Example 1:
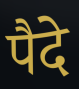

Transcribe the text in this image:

पैदे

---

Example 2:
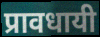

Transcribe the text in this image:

प्रावधायी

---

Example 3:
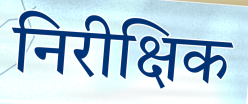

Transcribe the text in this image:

निरीक्षिक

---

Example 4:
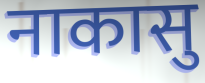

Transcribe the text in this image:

नाकासु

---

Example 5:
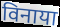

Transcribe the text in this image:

विनाया